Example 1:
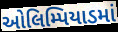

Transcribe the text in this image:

ઓલિમ્પિયાડમાં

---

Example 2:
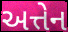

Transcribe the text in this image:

અત્તેન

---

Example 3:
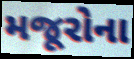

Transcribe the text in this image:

મજૂરોના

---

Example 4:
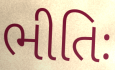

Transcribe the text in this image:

ભીતિઃ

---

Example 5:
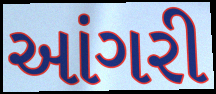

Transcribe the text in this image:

આંગરી